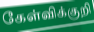
கேள்விக்குறி